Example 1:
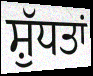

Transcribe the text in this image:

ਸ਼ੁੱਧਤਾਂ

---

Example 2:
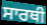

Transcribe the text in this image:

ਸਾਰਥੀ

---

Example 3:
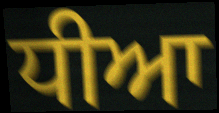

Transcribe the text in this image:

ਧੀਆ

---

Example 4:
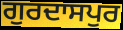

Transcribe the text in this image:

ਗੁਰਦਾਸਪੁਰ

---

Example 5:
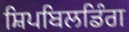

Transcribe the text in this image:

ਸ਼ਿਪਬਿਲਡਿੰਗ